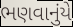
ભણવાનુંયે